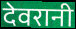
देवरानी